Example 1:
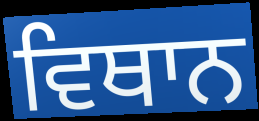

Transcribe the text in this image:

ਵਿਥਾਨ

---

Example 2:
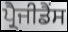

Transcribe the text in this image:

ਪ੍ਰੈਜੀਡੈਂਸ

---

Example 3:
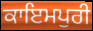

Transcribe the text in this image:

ਕਾਇਮਪੁਰੀ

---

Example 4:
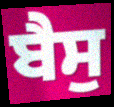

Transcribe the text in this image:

ਬੈਸੁ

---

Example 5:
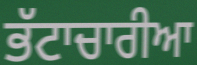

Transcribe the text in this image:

ਭੱਟਾਚਾਰੀਆ